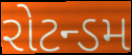
રોટન્ડમ